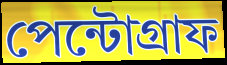
পেন্টোগ্রাফ